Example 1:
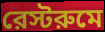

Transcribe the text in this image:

রেস্টরুমে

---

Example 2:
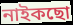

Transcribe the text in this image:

নাইকছো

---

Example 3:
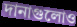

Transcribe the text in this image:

দানাগুলোও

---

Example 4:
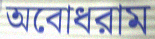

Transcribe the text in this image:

অবোধরাম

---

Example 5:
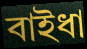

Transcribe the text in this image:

বাইধা